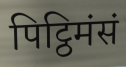
पिट्ठिमंसं